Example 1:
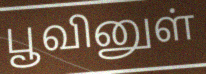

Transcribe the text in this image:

பூவினுள்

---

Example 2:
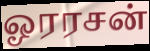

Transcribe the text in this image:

ஓரரசன்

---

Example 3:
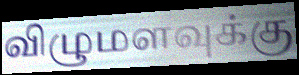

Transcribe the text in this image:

விழுமளவுக்கு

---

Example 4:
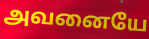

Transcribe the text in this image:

அவனையே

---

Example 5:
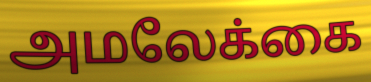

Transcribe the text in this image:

அமலேக்கை